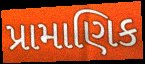
પ્રામાણિક